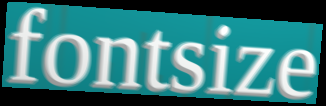
fontsize